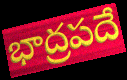
భాద్రపదే